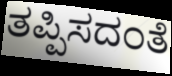
ತಪ್ಪಿಸದಂತೆ